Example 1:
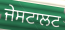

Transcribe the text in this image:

ਜੇਸਟਾਲਟ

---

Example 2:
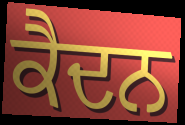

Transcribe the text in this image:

ਕੈਦਨ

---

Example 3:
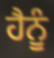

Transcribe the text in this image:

ਹੈਨੂੰ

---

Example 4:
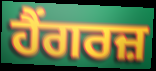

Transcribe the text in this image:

ਹੈਂਗਰਜ਼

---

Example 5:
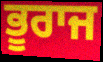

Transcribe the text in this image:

ਭੂਰਾਜ